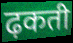
ढ़कती